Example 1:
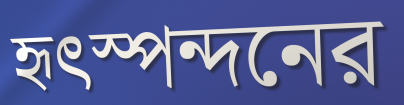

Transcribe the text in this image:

হৃৎস্পন্দনের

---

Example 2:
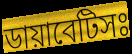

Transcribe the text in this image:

ডায়াবেটিসঃ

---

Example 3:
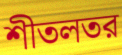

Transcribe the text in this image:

শীতলতর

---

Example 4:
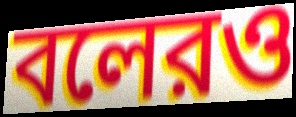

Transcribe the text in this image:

বলেরও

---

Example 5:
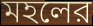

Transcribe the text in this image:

মহলের